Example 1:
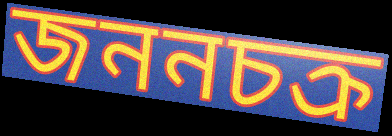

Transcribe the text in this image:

জননচক্র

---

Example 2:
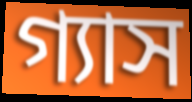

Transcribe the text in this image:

গ্যাস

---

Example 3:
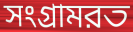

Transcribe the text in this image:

সংগ্রামরত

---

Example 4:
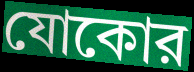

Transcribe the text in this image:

যোকোর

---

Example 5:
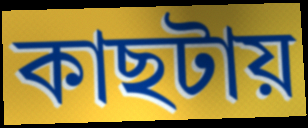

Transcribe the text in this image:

কাছটায়